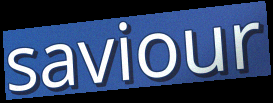
saviour